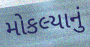
મોકલ્યાનું